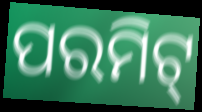
ପରମିଟ୍